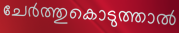
ചേർത്തുകൊടുത്താൽ